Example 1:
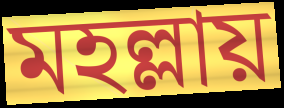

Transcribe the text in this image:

মহল্লায়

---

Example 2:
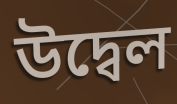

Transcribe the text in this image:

উদ্বেল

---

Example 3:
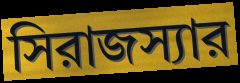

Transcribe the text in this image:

সিরাজস্যার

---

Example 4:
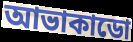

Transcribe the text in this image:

আভাকাডো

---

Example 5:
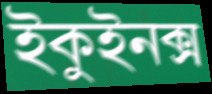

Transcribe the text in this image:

ইকুইনক্স